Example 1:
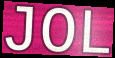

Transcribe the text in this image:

JOL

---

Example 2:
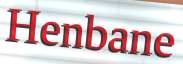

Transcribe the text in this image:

Henbane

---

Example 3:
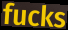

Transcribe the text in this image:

fucks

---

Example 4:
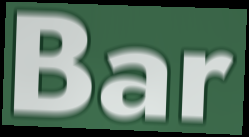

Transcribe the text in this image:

Bar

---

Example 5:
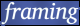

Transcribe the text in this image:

framing